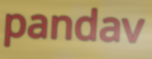
pandav